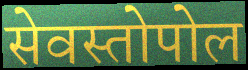
सेवस्तोपोल